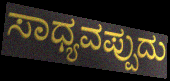
ಸಾಧ್ಯವಪ್ಪುದು